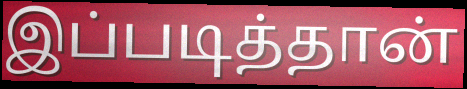
இப்படித்தான்